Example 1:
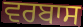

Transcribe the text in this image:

ਵਰਬਾਸ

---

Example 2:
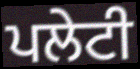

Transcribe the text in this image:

ਪਲੇਟੀ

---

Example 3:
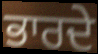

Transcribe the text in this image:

ਭਾਰਦੇ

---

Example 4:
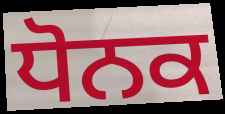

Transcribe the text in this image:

ਧੋਨਕ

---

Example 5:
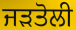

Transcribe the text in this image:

ਜੜਤੋਲੀ